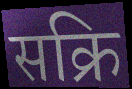
सक्रि